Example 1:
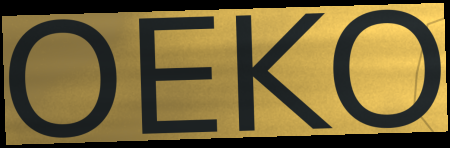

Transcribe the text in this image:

OEKO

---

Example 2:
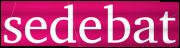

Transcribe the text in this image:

sedebat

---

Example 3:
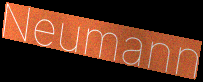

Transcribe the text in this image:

Neumann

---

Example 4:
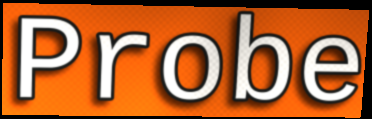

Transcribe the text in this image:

Probe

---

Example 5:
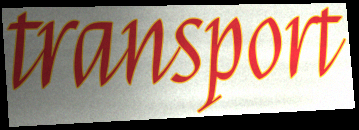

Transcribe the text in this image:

transport